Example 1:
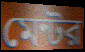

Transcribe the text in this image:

মেন্টর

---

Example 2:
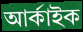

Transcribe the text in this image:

আর্কাইক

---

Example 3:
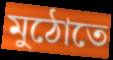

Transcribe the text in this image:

মুঠোতে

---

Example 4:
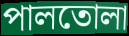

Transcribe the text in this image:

পালতোলা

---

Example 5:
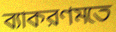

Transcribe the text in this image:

ব্যাকরণমতে